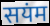
सयंम